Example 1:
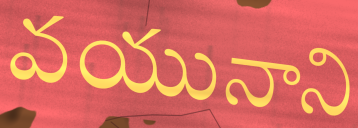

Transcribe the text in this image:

వయునాని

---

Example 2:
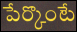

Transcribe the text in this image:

పేర్కొంటే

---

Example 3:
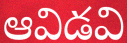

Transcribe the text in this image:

ఆవిడవి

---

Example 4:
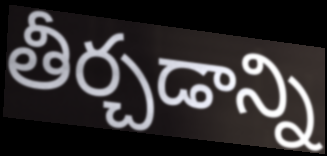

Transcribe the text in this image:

తీర్చడాన్ని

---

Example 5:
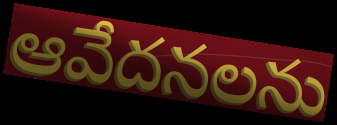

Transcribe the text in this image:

ఆవేదనలను